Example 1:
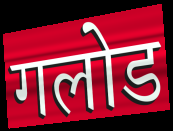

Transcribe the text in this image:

गलोड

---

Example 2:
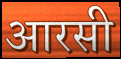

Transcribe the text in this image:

आरसी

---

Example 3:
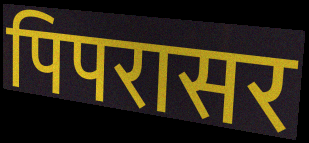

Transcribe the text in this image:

पिपरासर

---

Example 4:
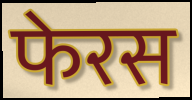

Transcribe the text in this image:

फेरस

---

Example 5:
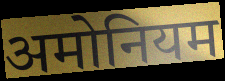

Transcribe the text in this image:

अमोनियम